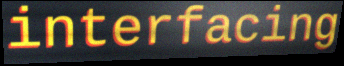
interfacing